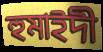
হুমাইদী